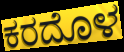
ಕರದೊಳ